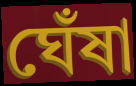
ঘেঁষা